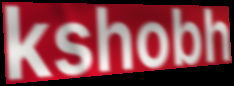
kshobh